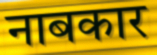
नाबकार